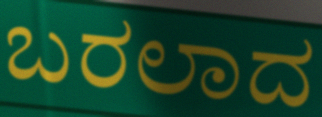
ಬರಲಾದ